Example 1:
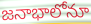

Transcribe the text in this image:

జనాభాలోనూ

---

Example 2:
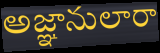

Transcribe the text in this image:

అజ్ఞానులారా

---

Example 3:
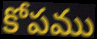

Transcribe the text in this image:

కోపము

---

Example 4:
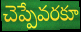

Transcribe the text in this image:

చెప్పేవరకూ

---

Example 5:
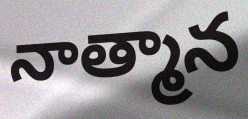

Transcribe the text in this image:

నాత్మాన